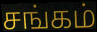
சங்கம்